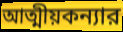
আত্মীয়কন্যার